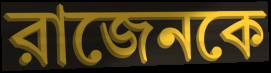
রাজেনকে